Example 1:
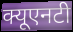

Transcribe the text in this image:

क्यूएनटी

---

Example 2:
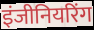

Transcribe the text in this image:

इंजीनियरिंग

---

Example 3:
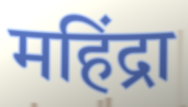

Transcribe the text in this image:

महिंद्रा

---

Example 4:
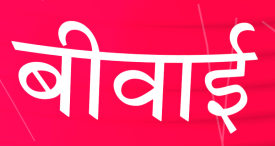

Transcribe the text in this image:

बीवाई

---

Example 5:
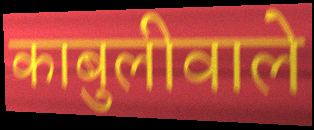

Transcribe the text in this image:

काबुलीवाले